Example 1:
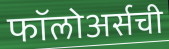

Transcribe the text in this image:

फॉलोअर्सची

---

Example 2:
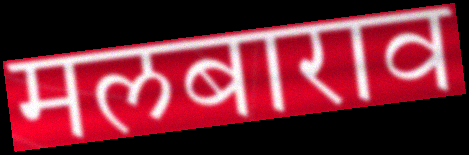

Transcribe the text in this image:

मलबाराव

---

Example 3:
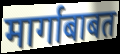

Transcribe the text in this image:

मार्गाबाबत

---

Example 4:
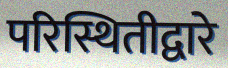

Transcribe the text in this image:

परिस्थितीद्वारे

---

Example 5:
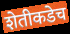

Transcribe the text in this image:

शेतीकडेच